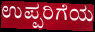
ಉಪ್ಪರಿಗೆಯ